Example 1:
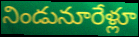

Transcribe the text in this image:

నిండునూరేళ్లూ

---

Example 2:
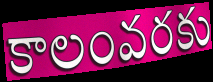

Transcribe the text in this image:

కాలంవరకు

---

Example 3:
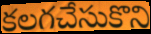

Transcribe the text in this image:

కలగచేసుకొని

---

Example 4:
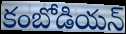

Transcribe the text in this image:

కంబోడియన్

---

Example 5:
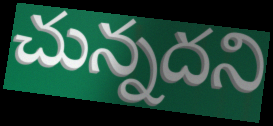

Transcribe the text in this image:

చున్నదని